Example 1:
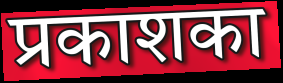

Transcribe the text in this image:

प्रकाशका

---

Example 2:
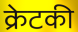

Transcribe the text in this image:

क्रेटकी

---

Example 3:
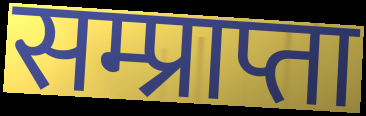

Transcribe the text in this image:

सम्प्राप्ता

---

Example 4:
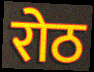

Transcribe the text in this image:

रोठ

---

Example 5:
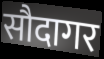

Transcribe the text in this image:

सौदागर